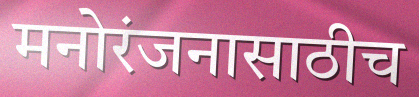
मनोरंजनासाठीच